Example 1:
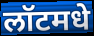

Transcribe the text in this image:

लॉटमधे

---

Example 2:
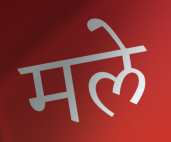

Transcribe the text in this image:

मले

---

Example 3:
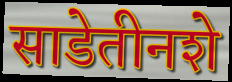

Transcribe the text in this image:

साडेतीनशे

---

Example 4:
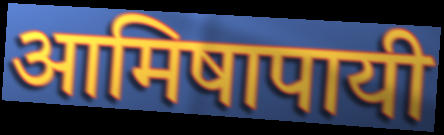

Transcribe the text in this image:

आमिषापायी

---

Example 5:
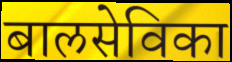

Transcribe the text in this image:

बालसेविका